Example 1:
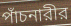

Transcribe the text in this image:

পাঁচনারীর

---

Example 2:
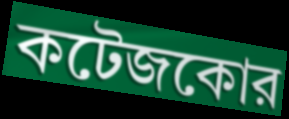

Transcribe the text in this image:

কটেজকোর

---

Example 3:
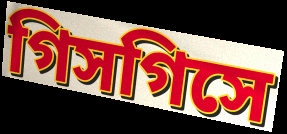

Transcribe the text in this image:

গিসগিসে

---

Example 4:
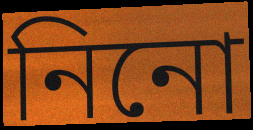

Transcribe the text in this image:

নিনো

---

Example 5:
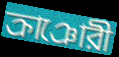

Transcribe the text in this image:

ক্রাঞোরী